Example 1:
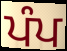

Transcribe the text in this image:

ਪੰਪ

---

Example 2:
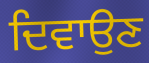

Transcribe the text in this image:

ਦਿਵਾਉਣ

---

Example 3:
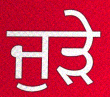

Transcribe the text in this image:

ਜੁੜੇ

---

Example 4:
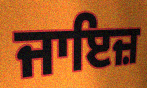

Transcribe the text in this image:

ਜਾਇਜ਼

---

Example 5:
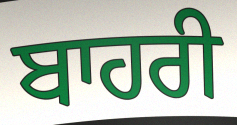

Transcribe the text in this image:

ਬਾਹਰੀ